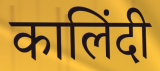
कालिंदी